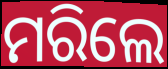
ମରିଲେ